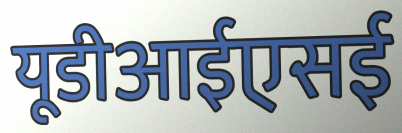
यूडीआईएसई